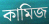
কামিজ